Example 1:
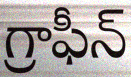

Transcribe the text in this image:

గ్రాఫీన్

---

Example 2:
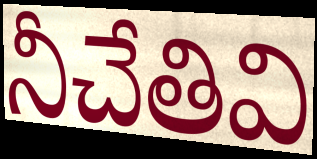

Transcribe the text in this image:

నీచేతివి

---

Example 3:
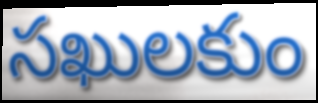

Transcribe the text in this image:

సఖులకుం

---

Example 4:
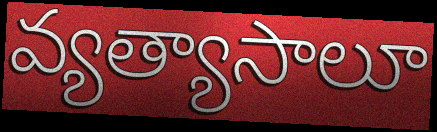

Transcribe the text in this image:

వ్యత్యాసాలూ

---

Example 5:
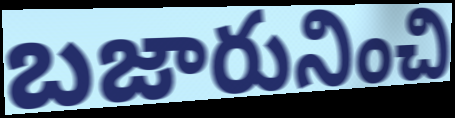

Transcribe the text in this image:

బజారునించి